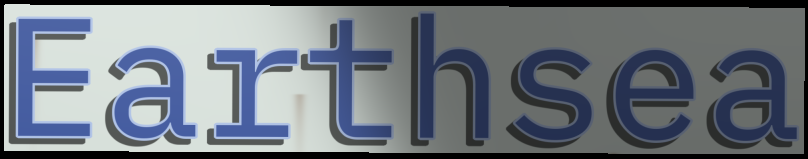
Earthsea